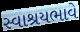
સ્વાશ્રયભાવે